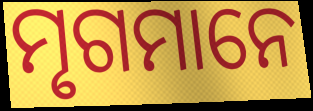
ମୃଗମାନେ